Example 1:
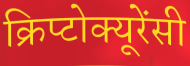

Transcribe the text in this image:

क्रिप्टोक्यूरेंसी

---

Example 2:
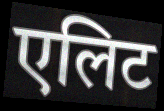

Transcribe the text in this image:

एलिट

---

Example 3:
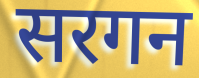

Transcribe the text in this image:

सरगन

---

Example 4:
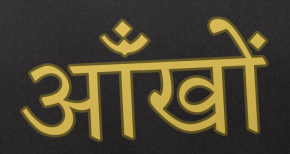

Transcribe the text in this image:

आंँखों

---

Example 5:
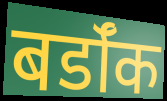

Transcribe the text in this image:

बर्डॉक